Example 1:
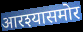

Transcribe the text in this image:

आरश्यासमोर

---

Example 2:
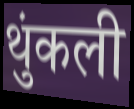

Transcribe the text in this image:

थुंकली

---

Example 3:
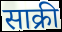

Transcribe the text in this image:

साक्री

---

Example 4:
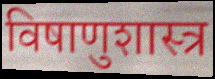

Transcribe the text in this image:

विषाणुशास्त्र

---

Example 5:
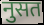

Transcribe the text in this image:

नुसत